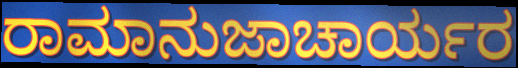
ರಾಮಾನುಜಾಚಾರ್ಯರ